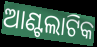
ଆଣ୍ଟଲାଟିକ